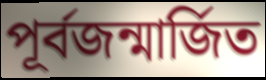
পূৰ্বজন্মাৰ্জিত